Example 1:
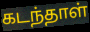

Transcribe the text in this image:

கடந்தாள்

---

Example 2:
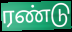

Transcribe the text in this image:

ரண்டு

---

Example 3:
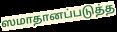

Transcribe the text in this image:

ஸமாதானப்படுத்த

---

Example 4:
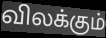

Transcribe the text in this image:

விலக்கும்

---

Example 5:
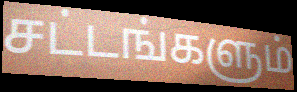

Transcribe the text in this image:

சட்டங்களும்